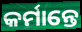
କର୍ମାନ୍ତେ